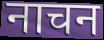
नाचन